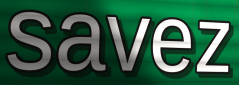
savez